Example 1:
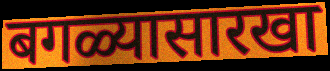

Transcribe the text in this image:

बगळ्यासारखा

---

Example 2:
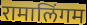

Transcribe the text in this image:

रामालिंगम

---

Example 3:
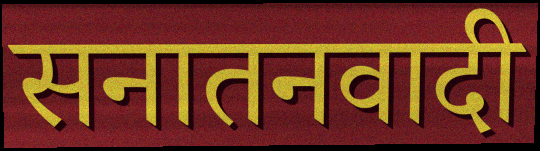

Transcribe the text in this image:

सनातनवादी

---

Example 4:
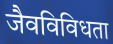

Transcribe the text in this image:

जैवविविधता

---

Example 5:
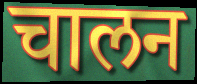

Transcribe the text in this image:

चालन